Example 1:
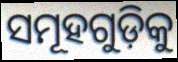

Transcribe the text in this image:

ସମୂହଗୁଡ଼ିକୁ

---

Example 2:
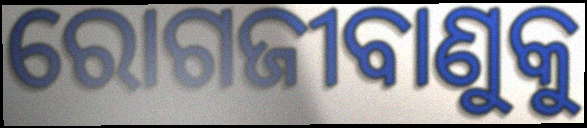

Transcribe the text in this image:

ରୋଗଜୀବାଣୁକୁ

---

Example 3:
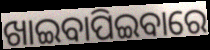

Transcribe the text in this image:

ଖାଇବାପିଇବାରେ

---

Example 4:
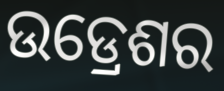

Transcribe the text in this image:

ଉଡ୍ରେଶର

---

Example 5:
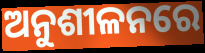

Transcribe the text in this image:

ଅନୁଶୀଳନରେ